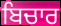
ਬਿਚਾਰ